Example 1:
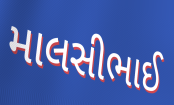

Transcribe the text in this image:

માલસીભાઈ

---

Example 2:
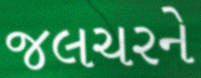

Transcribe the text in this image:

જલચરને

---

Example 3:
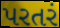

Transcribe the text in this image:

પરતરં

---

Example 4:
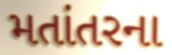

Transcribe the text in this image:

મતાંતરના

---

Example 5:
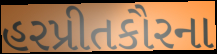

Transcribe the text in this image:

હરપ્રીતકૌરના